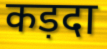
कड़दा